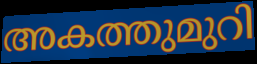
അകത്തുമുറി